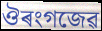
ঔৰংগজেৱ